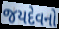
જયદેવનો